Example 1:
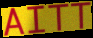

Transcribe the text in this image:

AITT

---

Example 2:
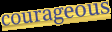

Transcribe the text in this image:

courageous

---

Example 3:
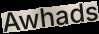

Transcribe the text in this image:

Awhads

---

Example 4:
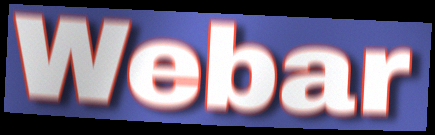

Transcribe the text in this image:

Webar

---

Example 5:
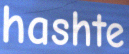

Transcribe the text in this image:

hashte